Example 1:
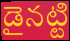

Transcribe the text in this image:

డైనట్టి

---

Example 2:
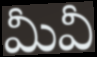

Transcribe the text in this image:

మీవీ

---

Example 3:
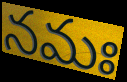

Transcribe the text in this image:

నమః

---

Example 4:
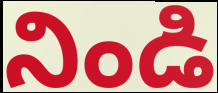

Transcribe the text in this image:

నిండి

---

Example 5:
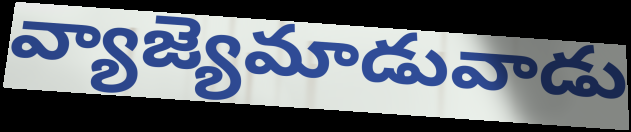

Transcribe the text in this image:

వ్యాజ్యెమాడువాడు